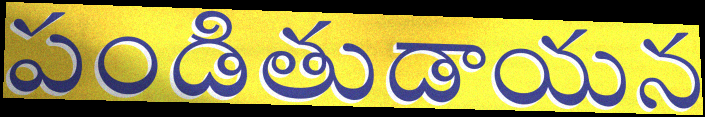
పండితుడాయన